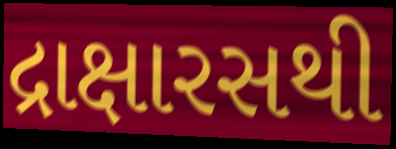
દ્રાક્ષારસથી